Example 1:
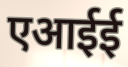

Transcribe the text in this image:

एआईई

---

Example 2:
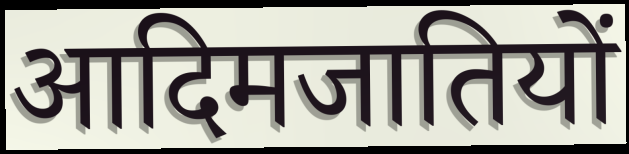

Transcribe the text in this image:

आदिमजातियों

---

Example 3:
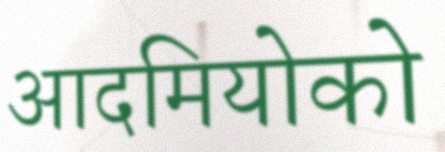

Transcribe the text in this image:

आदमियोको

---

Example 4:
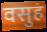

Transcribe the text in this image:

वसुहं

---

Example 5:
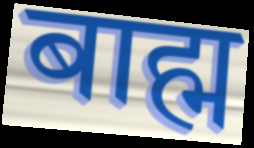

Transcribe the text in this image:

बाह्म